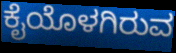
ಕೈಯೊಳಗಿರುವ